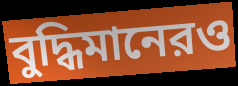
বুদ্ধিমানেরও